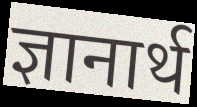
ज्ञानार्थ